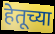
हेतूच्या